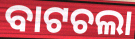
ବାଟଚଲା